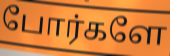
போர்களே